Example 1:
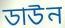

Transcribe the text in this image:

ডাউন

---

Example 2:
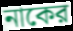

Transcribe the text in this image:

নাকের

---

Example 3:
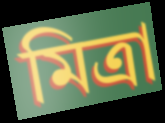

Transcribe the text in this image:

মিত্রা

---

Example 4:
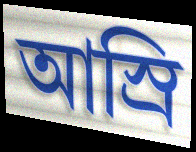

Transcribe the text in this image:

আস্রি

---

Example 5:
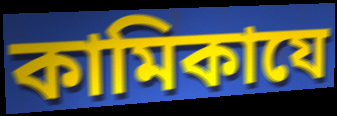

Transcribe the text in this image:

কামিকাযে